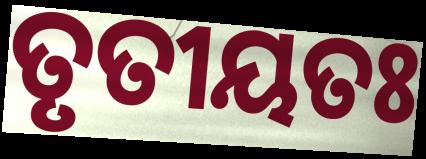
ତୃତୀୟତଃ